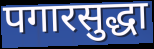
पगारसुद्धा